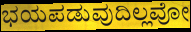
ಭಯಪಡುವುದಿಲ್ಲವೋ